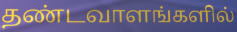
தண்டவாளங்களில்